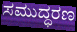
ಸಮುದ್ಧರಣ